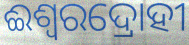
ଈଶ୍ଵରଦ୍ରୋହୀ